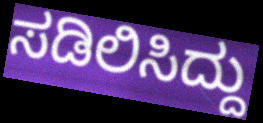
ಸಡಿಲಿಸಿದ್ದು